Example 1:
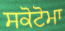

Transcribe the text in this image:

ਸਕੋਟੋਮਾ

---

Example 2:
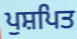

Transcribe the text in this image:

ਪੁਸ਼ਪਿਤ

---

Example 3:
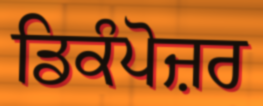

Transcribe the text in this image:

ਡਿਕੰਪੋਜ਼ਰ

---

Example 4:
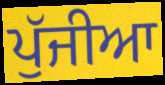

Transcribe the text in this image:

ਪੁੱਜੀਆ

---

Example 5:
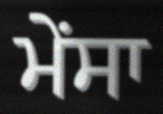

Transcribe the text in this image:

ਮੇਂਸਾ